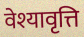
वेश्यावृत्ति